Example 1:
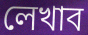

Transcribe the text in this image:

লেখাব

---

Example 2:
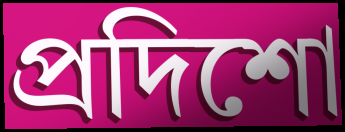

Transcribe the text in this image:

প্রদিশো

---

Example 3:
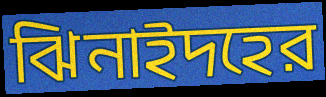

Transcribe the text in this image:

ঝিনাইদহের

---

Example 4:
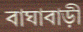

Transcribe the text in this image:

বাঘাবাড়ী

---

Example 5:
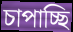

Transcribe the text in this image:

চাপাচ্ছি